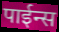
पाईन्स